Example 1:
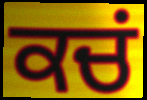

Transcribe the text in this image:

ਕਚਂ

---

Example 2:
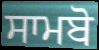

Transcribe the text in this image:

ਸਾਮਬੋ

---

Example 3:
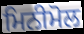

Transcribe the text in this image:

ਮਿਨੀਮੋਲ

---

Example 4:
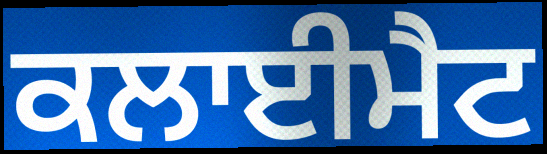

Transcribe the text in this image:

ਕਲਾਈਮੈਟ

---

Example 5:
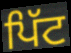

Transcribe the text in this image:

ਪਿੱਟ